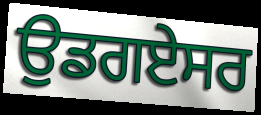
ਉਡਗਏਸਰ